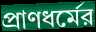
প্রাণধর্মের